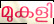
മുകളി